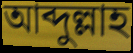
আব্দুল্লাহ